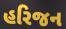
હરિજન